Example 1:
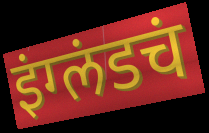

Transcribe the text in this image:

इंग्लंडचं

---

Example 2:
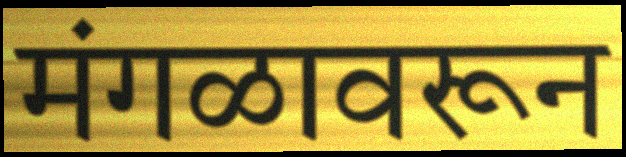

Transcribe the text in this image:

मंगळावरून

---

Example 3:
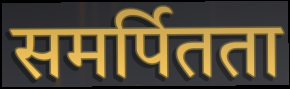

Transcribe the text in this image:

समर्पितता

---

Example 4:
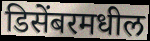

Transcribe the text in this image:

डिसेंबरमधील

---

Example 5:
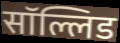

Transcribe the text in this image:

सॉल्लिड